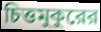
চিত্তমুকুরের